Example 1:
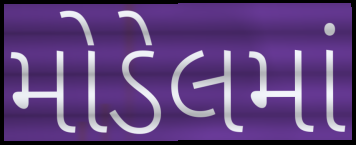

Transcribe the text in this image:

મોડેલમાં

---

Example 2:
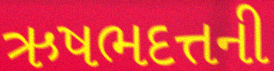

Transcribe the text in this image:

ઋષભદત્તની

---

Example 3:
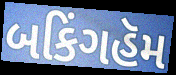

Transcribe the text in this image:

બકિંગહૅમ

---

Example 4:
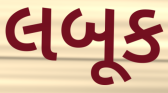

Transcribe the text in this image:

લબૂક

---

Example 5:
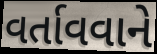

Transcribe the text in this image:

વર્તાવવાને